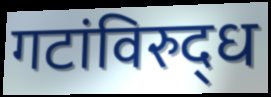
गटांविरुद्ध